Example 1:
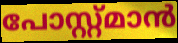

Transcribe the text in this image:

പോസ്റ്റ്മാൻ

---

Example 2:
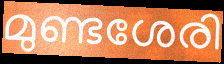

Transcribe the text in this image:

മുണ്ടശേരി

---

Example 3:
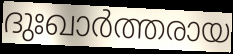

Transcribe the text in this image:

ദുഃഖാർത്തരായ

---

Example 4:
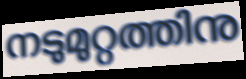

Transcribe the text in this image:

നടുമുറ്റത്തിനു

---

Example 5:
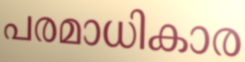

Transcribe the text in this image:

പരമാധികാര